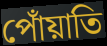
পোঁয়াতি